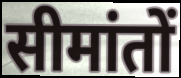
सीमांतों